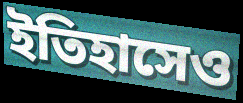
ইতিহাসেও